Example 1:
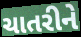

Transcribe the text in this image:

ચાતરીને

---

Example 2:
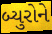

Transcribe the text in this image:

બ્યુરોને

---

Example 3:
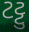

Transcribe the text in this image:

ટટ્ટુ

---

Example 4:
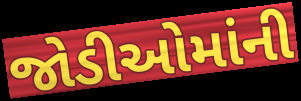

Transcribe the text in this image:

જોડીઓમાંની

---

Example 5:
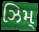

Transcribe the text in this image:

ઝિમ્